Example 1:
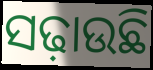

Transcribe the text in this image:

ସଢ଼ାଉଛି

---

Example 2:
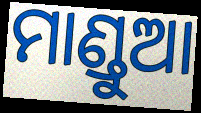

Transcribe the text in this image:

ମାଣ୍ଡୁଆ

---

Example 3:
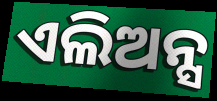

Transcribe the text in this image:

ଏଲିଅନ୍ସ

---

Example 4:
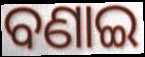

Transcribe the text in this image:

ବଣାଇ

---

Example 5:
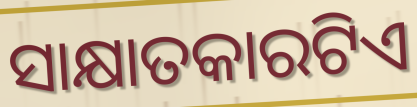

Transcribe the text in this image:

ସାକ୍ଷାତକାରଟିଏ